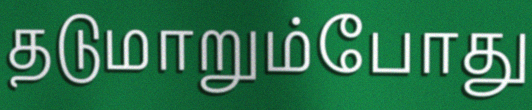
தடுமாறும்போது